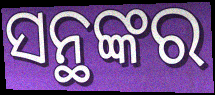
ସନ୍ଥଙ୍କର